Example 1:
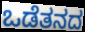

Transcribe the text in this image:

ಒಡೆತನದ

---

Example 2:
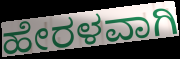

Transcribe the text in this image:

ಹೇರಳವಾಗಿ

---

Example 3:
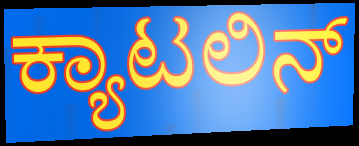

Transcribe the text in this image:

ಕ್ಯಾಟಲಿನ್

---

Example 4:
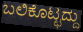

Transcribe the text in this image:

ಬಲಿಕೊಟ್ಟದ್ದು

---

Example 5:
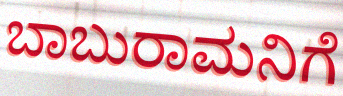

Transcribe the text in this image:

ಬಾಬುರಾಮನಿಗೆ